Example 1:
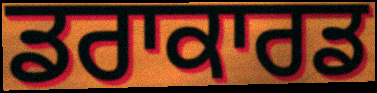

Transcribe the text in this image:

ਡਰਾਕਾਰਡ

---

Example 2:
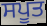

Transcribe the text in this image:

ਸਪੂਤ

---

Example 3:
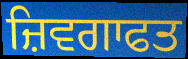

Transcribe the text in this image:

ਜ਼ਿਵਗਾਫਤ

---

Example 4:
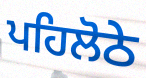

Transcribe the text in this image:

ਪਹਿਲੋਠੇ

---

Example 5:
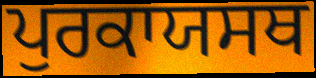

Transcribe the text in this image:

ਪੁਰਕਾਯਸਥ